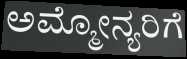
ಅಮ್ಮೋನ್ಯರಿಗೆ